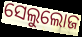
ସେଲୁଲୋଜ